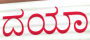
ದಯಾ